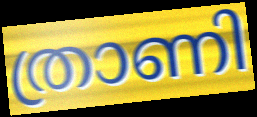
ത്രാണി